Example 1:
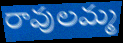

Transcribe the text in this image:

రావులమ్మ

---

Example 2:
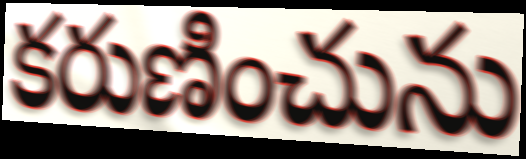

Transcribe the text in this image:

కరుణించును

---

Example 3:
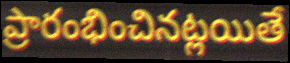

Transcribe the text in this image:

ప్రారంభించినట్లయితే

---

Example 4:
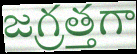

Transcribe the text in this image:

జగ్రత్తగా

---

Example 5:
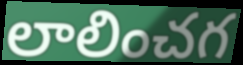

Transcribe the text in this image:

లాలించగ